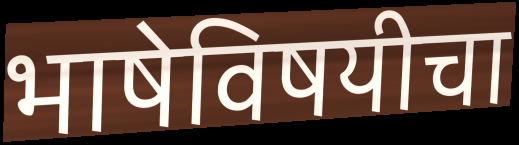
भाषेविषयीचा